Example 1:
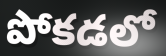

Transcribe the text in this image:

పోకడలో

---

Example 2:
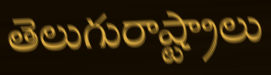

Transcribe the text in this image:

తెలుగురాష్ట్రాలు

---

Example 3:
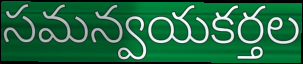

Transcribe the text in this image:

సమన్వయకర్తల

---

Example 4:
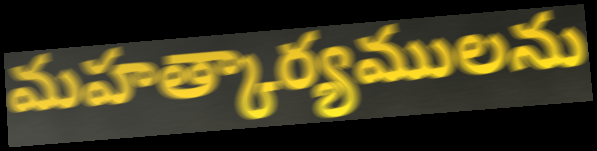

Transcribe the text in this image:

మహత్కార్యములను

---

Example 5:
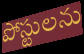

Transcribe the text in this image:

పోస్టులను